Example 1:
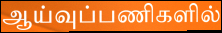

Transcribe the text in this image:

ஆய்வுப்பணிகளில்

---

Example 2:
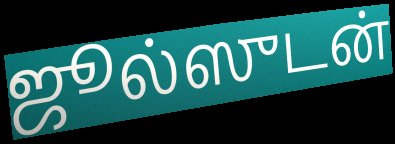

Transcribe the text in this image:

ஜூல்ஸுடன்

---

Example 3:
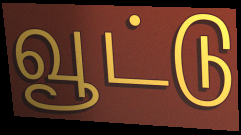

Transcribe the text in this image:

வூட்டு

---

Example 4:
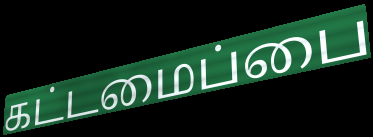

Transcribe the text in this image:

கட்டமைப்பை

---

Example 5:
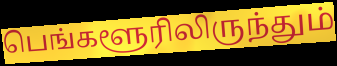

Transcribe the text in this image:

பெங்களூரிலிருந்தும்